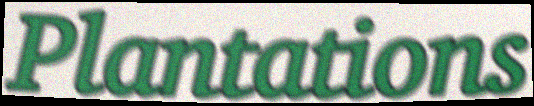
Plantations